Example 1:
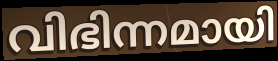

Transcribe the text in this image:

വിഭിന്നമായി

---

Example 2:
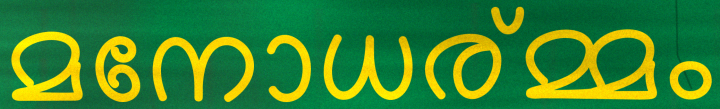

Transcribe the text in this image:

മനോധര്മ്മം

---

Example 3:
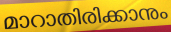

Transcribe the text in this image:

മാറാതിരിക്കാനും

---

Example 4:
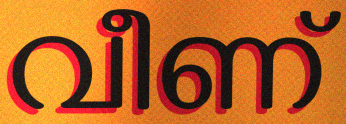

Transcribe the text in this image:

വീണ്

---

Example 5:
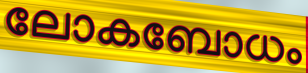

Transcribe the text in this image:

ലോകബോധം